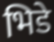
भिडे